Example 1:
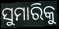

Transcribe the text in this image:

ସୁମାରିକୁ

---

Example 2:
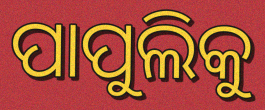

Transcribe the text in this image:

ପାପୁଲିକୁ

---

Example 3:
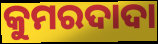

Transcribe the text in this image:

କୁମରଦାଦା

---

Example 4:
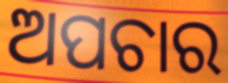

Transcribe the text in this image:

ଅପଚାର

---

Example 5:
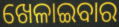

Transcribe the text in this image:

ଖେଳାଇବାର